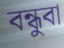
বন্ধুবা